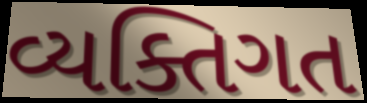
વ્યક્તિગત